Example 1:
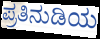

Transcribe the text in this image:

ಪ್ರತಿನುಡಿಯ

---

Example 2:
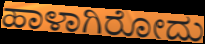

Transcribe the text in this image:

ಹಾಳಾಗಿರೋದು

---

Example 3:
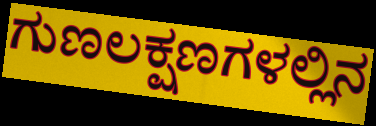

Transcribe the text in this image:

ಗುಣಲಕ್ಷಣಗಳಲ್ಲಿನ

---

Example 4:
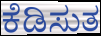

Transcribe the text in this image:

ಕೆಡಿಸುತ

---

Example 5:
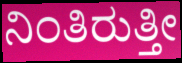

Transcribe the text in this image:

ನಿಂತಿರುತ್ತೀ